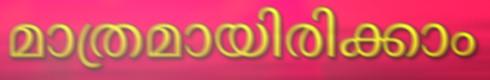
മാത്രമായിരിക്കാം